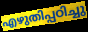
എഴുതിപ്പഠിച്ചു